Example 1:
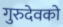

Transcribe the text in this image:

गुरुदेवको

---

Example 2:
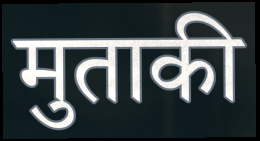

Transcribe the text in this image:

मुताकी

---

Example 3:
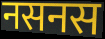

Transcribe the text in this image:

नसनस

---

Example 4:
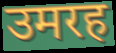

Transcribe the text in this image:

उमरह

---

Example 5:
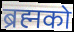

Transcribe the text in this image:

ब्रह्मको